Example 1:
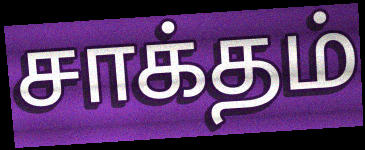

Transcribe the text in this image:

சாக்தம்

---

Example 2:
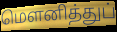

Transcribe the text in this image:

மெளனித்துப்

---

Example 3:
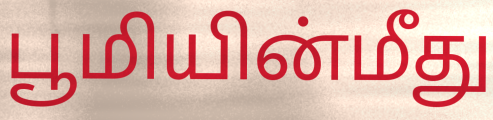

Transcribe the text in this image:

பூமியின்மீது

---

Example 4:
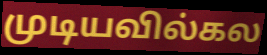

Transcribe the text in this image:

முடியவில்கல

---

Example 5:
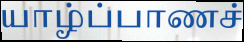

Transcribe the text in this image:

யாழ்ப்பாணச்